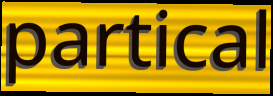
partical